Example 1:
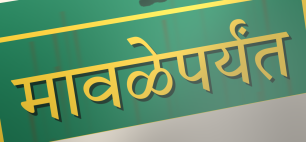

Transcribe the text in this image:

मावळेपर्यंत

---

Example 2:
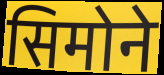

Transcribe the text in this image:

सिमोने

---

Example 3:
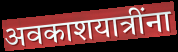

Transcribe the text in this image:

अवकाशयात्रींना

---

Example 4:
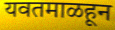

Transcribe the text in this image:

यवतमाळहून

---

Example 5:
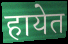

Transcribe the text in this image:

हायेत